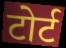
टोर्ट